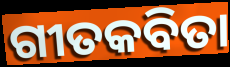
ଗୀତକବିତା